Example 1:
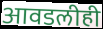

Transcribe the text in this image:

आवडलीही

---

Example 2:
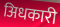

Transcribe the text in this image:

अिधकारी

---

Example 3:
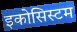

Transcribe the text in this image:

इकोसिस्टम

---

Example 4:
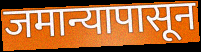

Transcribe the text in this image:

जमान्यापासून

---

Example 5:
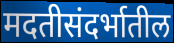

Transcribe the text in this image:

मदतीसंदर्भातील